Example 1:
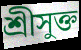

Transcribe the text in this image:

শ্রীসুক্ত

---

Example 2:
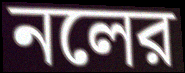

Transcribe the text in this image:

নলের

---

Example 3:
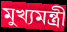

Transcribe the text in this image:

মুখ্যমন্ত্রী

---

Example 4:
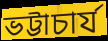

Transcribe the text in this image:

ভট্টাচার্য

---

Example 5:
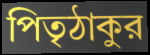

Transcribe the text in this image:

পিতৃঠাকুর